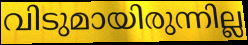
വിടുമായിരുന്നില്ല